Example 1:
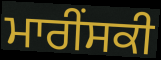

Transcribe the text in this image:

ਮਾਰੀੰਸਕੀ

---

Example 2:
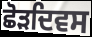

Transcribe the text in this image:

ਛੋੜਦਿਵਸ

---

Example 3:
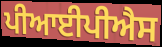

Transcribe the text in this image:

ਪੀਆਈਪੀਐਸ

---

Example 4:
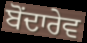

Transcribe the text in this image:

ਬੋਂਦਾਰੇਵ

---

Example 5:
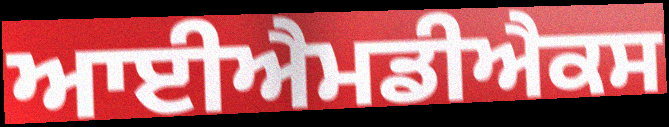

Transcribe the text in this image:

ਆਈਐਮਡੀਐਕਸ